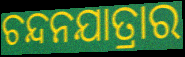
ଚନ୍ଦନଯାତ୍ରାର